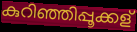
കുറിഞ്ഞിപ്പൂക്കള്